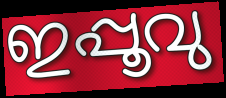
ഇപ്പൂവു